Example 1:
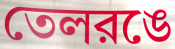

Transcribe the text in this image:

তেলরঙে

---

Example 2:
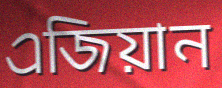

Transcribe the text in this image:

এজিয়ান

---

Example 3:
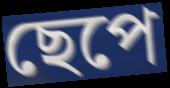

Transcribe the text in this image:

ছেপে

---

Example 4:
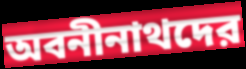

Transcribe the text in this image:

অবনীনাথদের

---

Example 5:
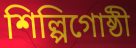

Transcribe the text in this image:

শিল্পিগোষ্ঠী